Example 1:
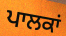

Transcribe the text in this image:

ਪਾਲਕਾਂ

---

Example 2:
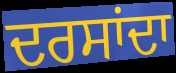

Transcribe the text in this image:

ਦਰਸਾਂਦਾ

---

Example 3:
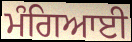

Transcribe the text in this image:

ਮੰਗਿਆਈ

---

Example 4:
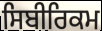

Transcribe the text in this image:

ਸਿਬੀਰਿਕਮ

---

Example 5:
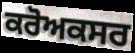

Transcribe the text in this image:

ਕਰੋਅਕਸਰ